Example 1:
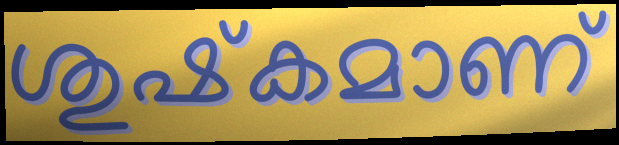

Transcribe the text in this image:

ശുഷ്‌കമാണ്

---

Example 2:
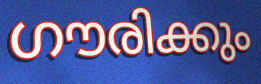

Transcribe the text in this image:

ഗൗരിക്കും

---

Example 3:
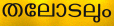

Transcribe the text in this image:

തലോടലും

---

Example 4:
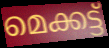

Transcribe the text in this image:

മെക്കട്ട്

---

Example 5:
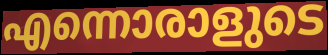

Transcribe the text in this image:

എന്നൊരാളുടെ